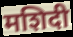
मशिदी